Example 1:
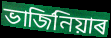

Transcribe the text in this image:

ভাৰ্জিনিয়াৰ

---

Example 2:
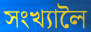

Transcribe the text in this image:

সংখ্যালৈ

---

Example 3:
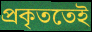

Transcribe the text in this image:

প্ৰকৃততেই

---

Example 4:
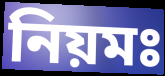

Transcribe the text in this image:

নিয়মঃ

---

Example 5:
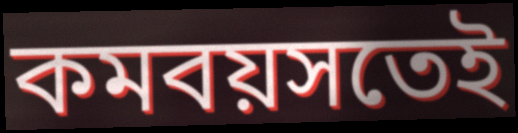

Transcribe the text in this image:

কমবয়সতেই